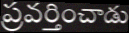
ప్రవర్తించాడు